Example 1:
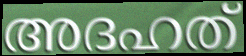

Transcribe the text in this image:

അദഹത്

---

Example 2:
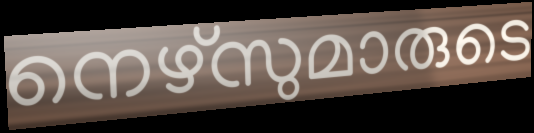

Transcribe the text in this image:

നെഴ്സുമാരുടെ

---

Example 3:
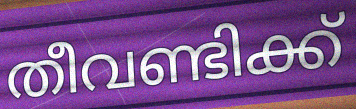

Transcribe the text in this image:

തീവണ്ടിക്ക്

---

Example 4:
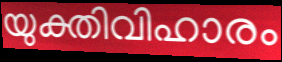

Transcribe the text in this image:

യുക്തിവിഹാരം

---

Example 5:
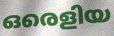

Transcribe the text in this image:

ഒരെളിയ